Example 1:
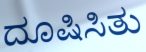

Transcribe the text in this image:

ದೂಷಿಸಿತು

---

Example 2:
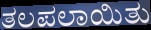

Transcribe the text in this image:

ತಲಪಲಾಯಿತು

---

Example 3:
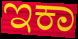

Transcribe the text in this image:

ಇಕಾ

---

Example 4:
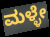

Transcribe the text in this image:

ಮಳ್ಳೇ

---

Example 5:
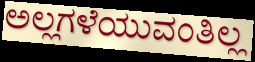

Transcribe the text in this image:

ಅಲ್ಲಗಳೆಯುವಂತಿಲ್ಲ